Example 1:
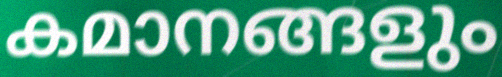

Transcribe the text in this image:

കമാനങ്ങളും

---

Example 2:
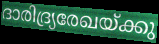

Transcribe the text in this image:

ദാരിദ്ര്യരേഖയ്ക്കു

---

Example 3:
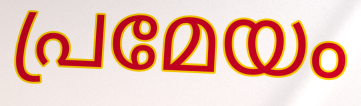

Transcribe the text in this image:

പ്രമേയം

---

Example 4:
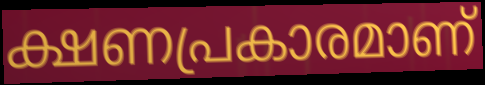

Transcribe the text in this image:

ക്ഷണപ്രകാരമാണ്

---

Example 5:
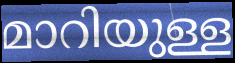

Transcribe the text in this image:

മാറിയുള്ള